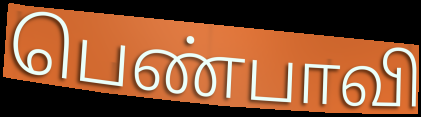
பெண்பாவி